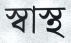
স্বাস্থ